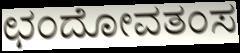
ಛಂದೋವತಂಸ